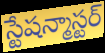
స్టేషన్మాస్టర్